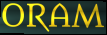
ORAM